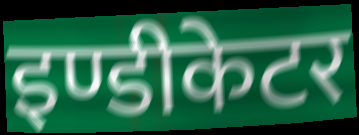
इण्डीकेटर